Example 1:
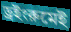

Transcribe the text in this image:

ড্রইংরুমেই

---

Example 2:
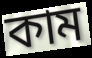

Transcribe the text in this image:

কাম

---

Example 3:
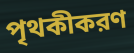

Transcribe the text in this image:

পৃথকীকরণ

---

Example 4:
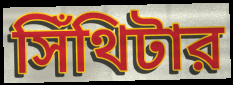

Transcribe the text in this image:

সিঁথিটার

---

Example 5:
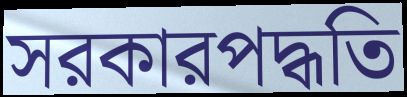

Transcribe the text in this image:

সরকারপদ্ধতি